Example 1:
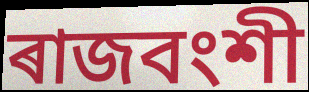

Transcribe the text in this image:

ৰাজবংশী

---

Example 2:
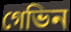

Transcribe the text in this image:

গেভিন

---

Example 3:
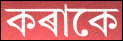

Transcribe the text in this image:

কৰাকে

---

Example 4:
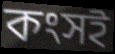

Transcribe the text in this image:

কংসই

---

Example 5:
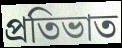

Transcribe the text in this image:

প্ৰতিভাত